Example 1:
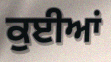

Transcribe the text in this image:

ਕੁਈਆਂ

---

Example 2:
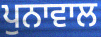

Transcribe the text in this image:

ਪੁਨਾਵਾਲ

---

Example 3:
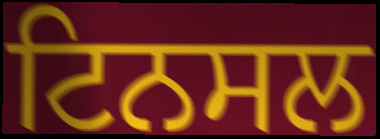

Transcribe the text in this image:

ਟਿਨਸਲ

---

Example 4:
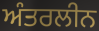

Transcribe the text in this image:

ਅੰਤਰਲੀਨ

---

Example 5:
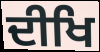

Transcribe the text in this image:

ਦੀਖਿ